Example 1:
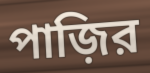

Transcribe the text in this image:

পাজ়ির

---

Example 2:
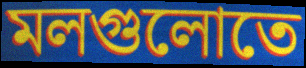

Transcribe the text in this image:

মলগুলোতে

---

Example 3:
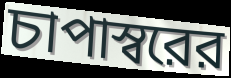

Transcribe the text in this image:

চাপাস্বরের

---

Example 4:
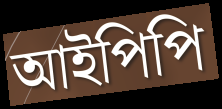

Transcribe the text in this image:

আইপিপি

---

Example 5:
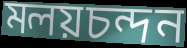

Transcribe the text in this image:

মলয়চন্দন